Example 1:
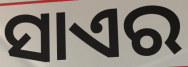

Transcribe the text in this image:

ସାଏର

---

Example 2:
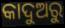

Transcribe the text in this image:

କାଦୁଅରୁ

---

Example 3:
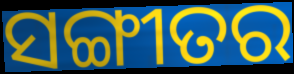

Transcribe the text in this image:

ସଙ୍ଗୀତର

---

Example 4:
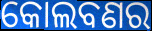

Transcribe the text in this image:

କୋଲବଣର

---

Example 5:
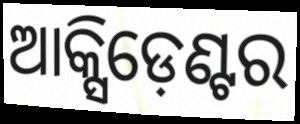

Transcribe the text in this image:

ଆକ୍ସିଡ଼େଣ୍ଟର